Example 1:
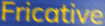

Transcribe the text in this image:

Fricative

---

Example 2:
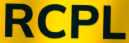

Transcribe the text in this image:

RCPL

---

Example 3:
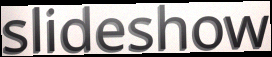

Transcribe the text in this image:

slideshow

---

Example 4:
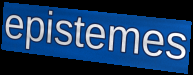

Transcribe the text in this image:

epistemes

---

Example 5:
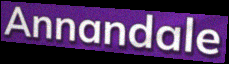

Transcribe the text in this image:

Annandale